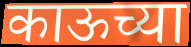
काऊच्या